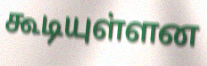
கூடியுள்ளன